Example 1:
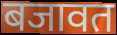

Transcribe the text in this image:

बजावत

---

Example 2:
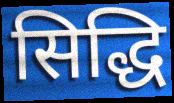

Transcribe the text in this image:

सिद्धि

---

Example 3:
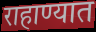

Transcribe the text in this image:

राहाण्यात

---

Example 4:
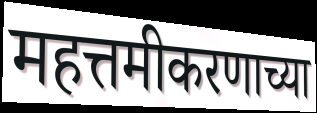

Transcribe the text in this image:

महत्तमीकरणाच्या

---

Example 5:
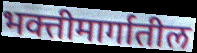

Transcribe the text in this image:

भक्तीमार्गातील